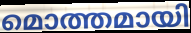
മൊത്തമായി